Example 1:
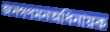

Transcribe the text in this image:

জনগণমনঅধিনায়ক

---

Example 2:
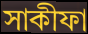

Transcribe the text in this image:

সাকীফা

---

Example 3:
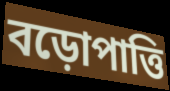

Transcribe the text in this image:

বড়োপাত্তি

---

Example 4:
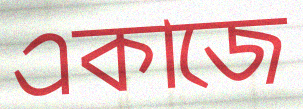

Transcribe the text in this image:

একাজে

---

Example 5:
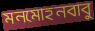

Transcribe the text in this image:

মনমোহনবাবু